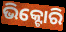
ଭିକ୍ଟୋରି